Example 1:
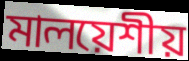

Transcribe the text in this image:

মালয়েশীয়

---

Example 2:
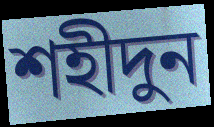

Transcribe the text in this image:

শহীদুন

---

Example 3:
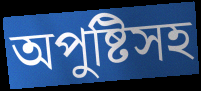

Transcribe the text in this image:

অপুষ্টিসহ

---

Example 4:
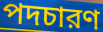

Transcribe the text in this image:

পদচারণ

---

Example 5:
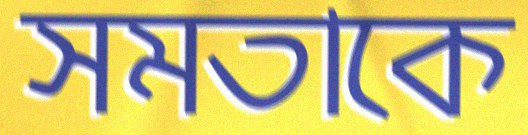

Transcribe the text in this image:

সমতাকে